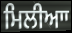
ਮਿਲੀਆਾ